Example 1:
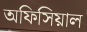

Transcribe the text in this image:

অফিসিয়াল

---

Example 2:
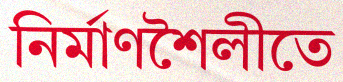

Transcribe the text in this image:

নির্মাণশৈলীতে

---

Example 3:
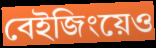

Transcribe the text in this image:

বেইজিংয়েও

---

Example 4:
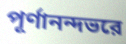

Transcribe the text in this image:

পূর্ণানন্দভরে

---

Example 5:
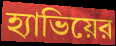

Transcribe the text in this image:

হ্যাভিয়ের